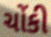
ચોંકી